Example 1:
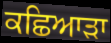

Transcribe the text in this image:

ਕਛਿਆੜਾ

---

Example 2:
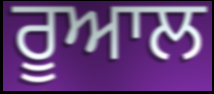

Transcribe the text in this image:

ਰੂਆਲ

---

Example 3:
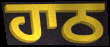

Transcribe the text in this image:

ਹਾਠ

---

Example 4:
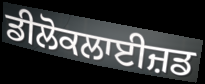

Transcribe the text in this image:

ਡੀਲੋਕਲਾਈਜ਼ਡ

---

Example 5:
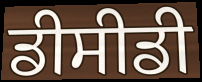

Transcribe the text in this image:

ਡੀਸੀਡੀ